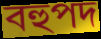
বহুপদ